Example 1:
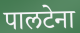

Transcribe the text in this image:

पालटेना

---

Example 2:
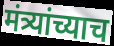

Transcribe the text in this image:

मंत्र्यांच्याच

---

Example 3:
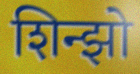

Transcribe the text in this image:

शिन्झो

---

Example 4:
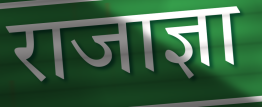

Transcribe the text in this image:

राजाज्ञा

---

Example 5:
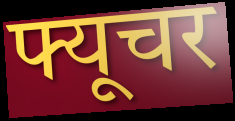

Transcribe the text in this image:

फ्यूचर